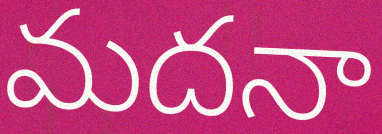
మదనా